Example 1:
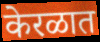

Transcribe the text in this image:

केरळात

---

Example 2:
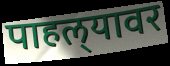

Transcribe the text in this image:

पाहल्यावर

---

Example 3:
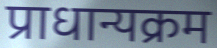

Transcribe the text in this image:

प्राधान्यक्रम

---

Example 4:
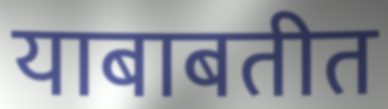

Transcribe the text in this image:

याबाबतीत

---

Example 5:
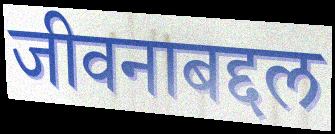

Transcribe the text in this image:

जीवनाबद्दल